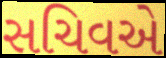
સચિવએ